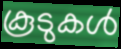
കൂടുകൾ